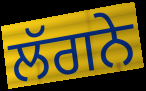
ਲੱਗਨੇ